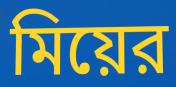
মিয়ের